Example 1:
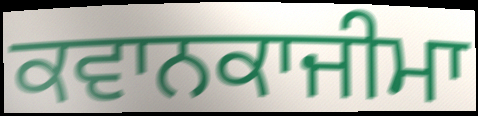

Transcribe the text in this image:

ਕਵਾਨਕਾਜੀਮਾ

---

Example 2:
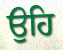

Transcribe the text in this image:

ਉਹਿ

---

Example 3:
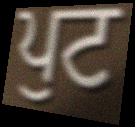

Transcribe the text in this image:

ਪੁਟ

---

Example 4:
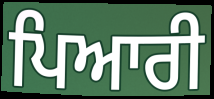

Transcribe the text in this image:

ਪਿਆਰੀ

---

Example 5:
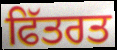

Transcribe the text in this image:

ਫਿੱਤਰਤ